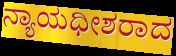
ನ್ಯಾಯಧೀಶರಾದ